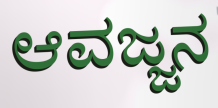
ಆವಜ್ಜನ